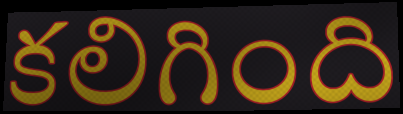
కలిగింది